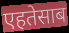
एहतेसाब